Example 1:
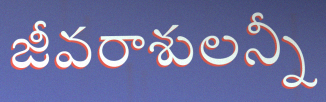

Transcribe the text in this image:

జీవరాశులన్నీ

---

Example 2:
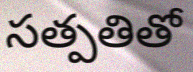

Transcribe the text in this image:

సత్పతితో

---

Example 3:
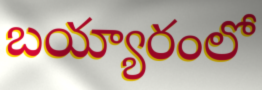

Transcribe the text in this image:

బయ్యారంలో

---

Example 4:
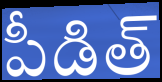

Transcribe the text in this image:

పీడిత్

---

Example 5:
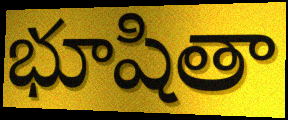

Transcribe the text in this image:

భూషితా